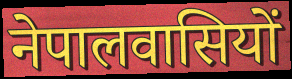
नेपालवासियों